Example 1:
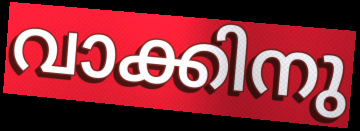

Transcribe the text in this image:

വാക്കിനു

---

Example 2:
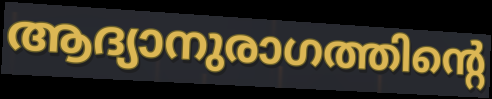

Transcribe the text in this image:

ആദ്യാനുരാഗത്തിന്റെ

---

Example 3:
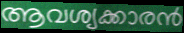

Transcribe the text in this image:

ആവശ്യക്കാരൻ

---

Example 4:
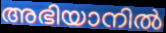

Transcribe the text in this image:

അഭിയാനിൽ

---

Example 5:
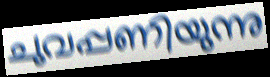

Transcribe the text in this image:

ചുവപ്പണിയുന്നു